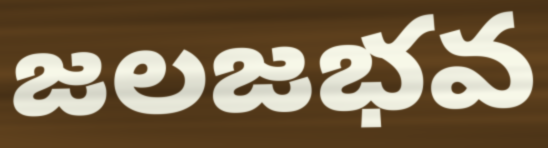
జలజభవ